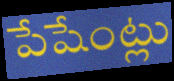
పేషేంట్లు